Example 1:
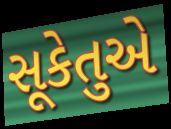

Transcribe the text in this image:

સૂકેતુએ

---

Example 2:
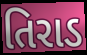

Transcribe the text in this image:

તિરાડ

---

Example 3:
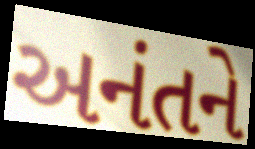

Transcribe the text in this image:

અનંતને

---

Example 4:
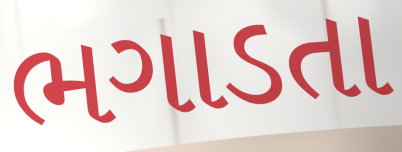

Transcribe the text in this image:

ભગાડતા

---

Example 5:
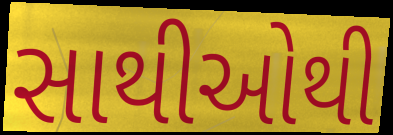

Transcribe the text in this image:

સાથીઓથી